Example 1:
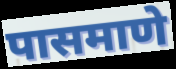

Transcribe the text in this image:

पासमाणे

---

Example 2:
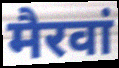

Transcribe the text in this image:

मैरवां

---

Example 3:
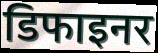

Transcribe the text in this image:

डिफाइनर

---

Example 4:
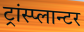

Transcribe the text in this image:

ट्रांस्प्लान्टर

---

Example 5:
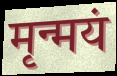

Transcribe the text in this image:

मृन्मयं